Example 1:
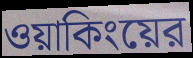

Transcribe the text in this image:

ওয়াকিংয়ের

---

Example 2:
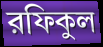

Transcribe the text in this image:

রফিকুল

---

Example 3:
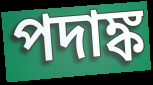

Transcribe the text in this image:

পদাঙ্ক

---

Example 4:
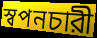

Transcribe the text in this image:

স্বপনচারী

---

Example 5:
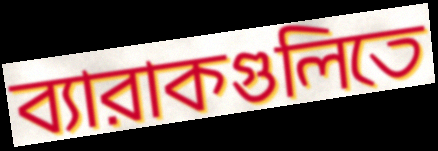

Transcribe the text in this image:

ব্যারাকগুলিতে